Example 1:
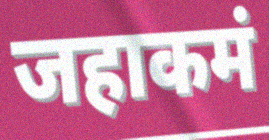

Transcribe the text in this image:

जहाकमं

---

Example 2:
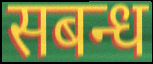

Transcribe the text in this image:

सबन्ध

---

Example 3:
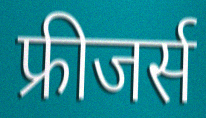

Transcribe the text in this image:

फ्रीजर्स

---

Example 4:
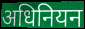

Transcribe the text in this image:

अधिनियन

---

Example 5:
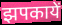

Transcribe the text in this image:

झपकायें